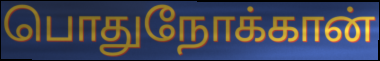
பொதுநோக்கான்